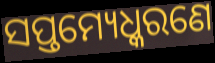
ସପ୍ତମ୍ୟେଧ୍କରଣେ